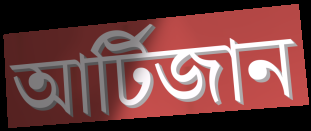
আর্টিজান